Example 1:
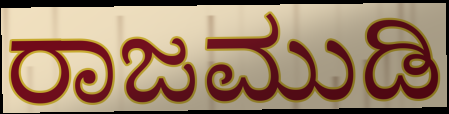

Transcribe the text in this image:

ರಾಜಮುಡಿ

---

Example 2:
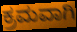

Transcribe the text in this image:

ಕ್ರಮವಾಗಿ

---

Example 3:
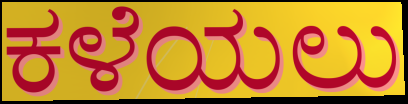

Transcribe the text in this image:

ಕಳೆಯಲು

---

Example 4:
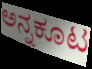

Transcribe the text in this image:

ಅನ್ನಕೂಟ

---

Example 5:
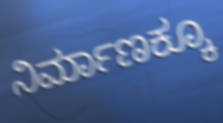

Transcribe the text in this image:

ನಿರ್ಮಾಣಕ್ಕೂ